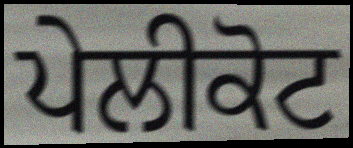
ਪੇਲੀਕੋਟ